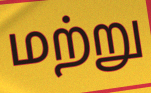
மற்று